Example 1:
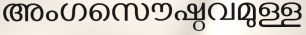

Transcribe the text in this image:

അംഗസൌഷ്ഠവമുള്ള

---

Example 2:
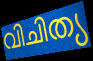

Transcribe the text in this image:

വിചിത്യ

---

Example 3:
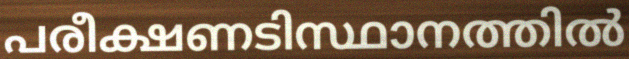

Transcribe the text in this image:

പരീക്ഷണടിസ്ഥാനത്തിൽ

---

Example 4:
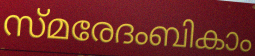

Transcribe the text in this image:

സ്മരേദംബികാം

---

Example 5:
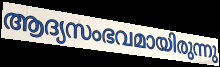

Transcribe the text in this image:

ആദ്യസംഭവമായിരുന്നു